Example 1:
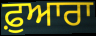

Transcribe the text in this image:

ਫ਼ੁਆਰਾ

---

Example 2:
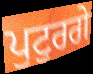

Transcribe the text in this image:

ਪੁਟੁਰਗੇ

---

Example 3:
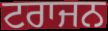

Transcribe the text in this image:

ਟਰਾਜਨ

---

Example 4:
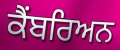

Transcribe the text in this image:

ਕੈਂਬਰਿਅਨ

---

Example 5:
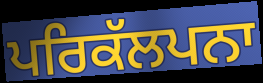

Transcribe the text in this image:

ਪਰਿਕੱਲਪਨਾ